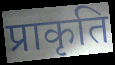
प्राकृति